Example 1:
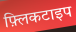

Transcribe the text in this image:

फ़्लिकटाइप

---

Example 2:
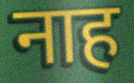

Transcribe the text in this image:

नाह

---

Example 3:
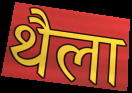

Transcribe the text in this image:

थैला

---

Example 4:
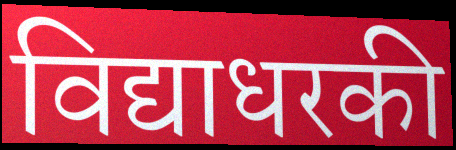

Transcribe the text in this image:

विद्याधरकी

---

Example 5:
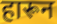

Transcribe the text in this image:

हारून